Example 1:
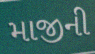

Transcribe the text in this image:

માજીની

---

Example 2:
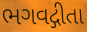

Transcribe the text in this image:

ભગવદ્ગીતા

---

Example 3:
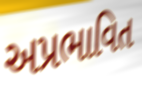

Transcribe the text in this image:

અપ્રભાવિત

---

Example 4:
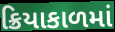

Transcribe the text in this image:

ક્રિયાકાળમાં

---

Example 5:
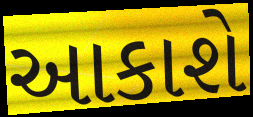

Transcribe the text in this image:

આકાશે